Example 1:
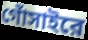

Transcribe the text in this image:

গোঁসাইরে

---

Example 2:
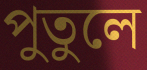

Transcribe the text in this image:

পুতুলে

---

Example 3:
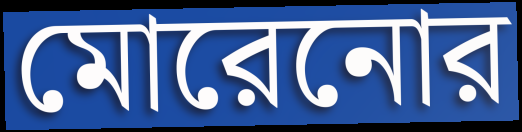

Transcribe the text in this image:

মোরেনোর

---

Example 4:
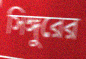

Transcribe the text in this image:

সিঙ্গুরের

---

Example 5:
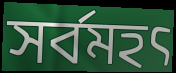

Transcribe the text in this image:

সর্বমহৎ